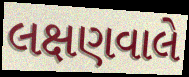
લક્ષણવાલે